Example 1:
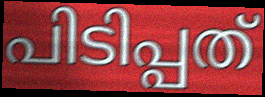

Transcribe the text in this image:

പിടിപ്പത്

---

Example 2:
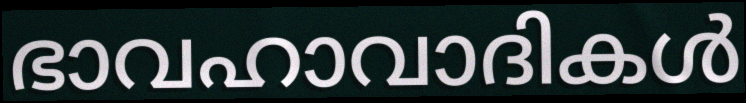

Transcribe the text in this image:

ഭാവഹാവാദികൾ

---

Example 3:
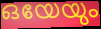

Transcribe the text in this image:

ഒയേയും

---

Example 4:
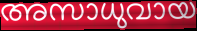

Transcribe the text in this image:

അസാധുവായ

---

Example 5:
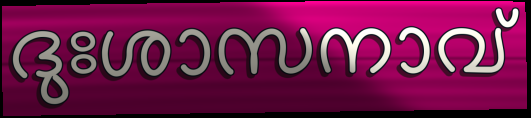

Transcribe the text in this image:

ദുഃശാസനാവ്